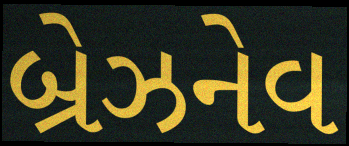
બ્રેઝનેવ